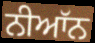
ਨੀਆੱਨ